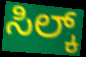
ಸಿಲ್ಕ್